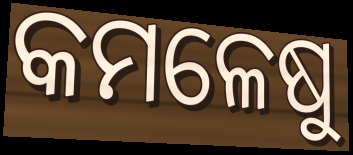
କମଳେଷୁ